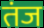
तंज